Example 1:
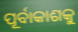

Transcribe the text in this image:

ପୂର୍ବାକାଶକୁ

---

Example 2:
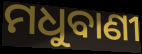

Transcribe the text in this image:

ମଧୁବାଣୀ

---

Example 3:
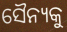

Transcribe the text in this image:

ସୈନ୍ୟକୁ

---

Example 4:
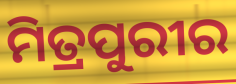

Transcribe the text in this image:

ମିତ୍ରପୁରୀର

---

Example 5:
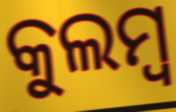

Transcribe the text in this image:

କୁଲମ୍ବ